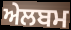
ਅੇਲਬਮ